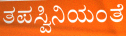
ತಪಸ್ವಿನಿಯಂತೆ